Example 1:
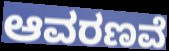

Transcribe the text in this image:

ಆವರಣವೆ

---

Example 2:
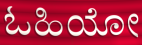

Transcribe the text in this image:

ಓಹಿಯೋ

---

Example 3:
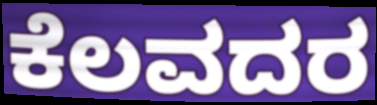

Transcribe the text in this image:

ಕೆಲವದರ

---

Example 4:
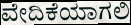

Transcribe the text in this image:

ವೇದಿಕೆಯಾಗಲಿ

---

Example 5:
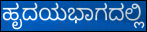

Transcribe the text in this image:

ಹೃದಯಭಾಗದಲ್ಲಿ